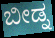
ಬೀಡ್ನ